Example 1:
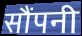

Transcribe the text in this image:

सौंपनी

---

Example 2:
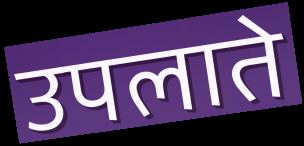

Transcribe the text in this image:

उपलाते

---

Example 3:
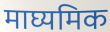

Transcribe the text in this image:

माघ्यमिक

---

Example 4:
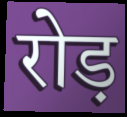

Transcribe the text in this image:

रोड़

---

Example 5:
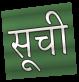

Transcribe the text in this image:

सूची